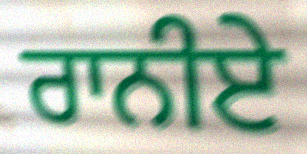
ਰਾਨੀਏ